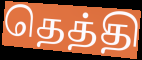
தெத்தி